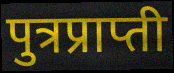
पुत्रप्राप्ती